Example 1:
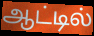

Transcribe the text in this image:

ஆட்டில்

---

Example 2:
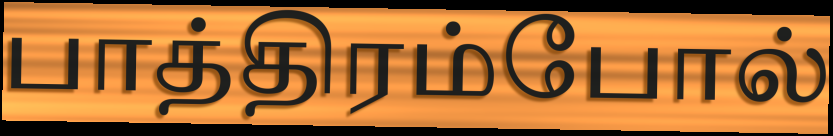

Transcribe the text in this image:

பாத்திரம்போல்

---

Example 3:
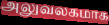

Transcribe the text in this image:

அலுவலகமாக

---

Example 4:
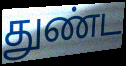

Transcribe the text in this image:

துண்ட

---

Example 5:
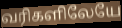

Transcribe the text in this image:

வரிகளிலேயே